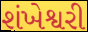
શંખેશ્વરી